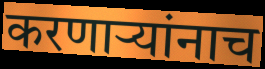
करणार्‍यांनाच